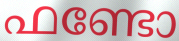
ഫണ്ടോ